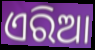
ଏରିଆ